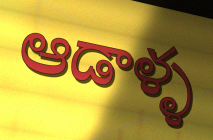
ఆడాళ్ళ